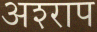
अश्राप